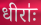
धीराः॑